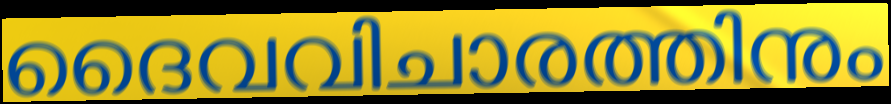
ദൈവവിചാരത്തിനും